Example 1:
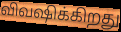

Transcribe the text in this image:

விவஷிக்கிறது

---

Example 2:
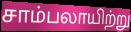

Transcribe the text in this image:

சாம்பலாயிற்று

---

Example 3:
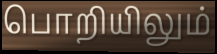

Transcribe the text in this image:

பொறியிலும்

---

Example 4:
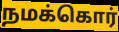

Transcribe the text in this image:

நமக்கொர்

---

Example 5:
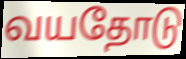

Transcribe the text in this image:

வயதோடு